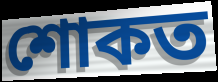
শোকত